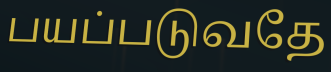
பயப்படுவதே